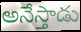
అనేస్తాడు